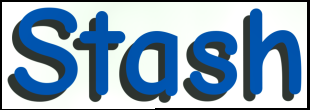
Stash